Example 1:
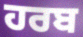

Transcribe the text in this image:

ਹਰਬ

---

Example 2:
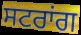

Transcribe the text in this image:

ਸਟਰਾਂਗ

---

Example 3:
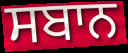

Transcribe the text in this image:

ਸਬਾਨ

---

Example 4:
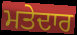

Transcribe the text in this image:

ਮਤੇਦਾਰ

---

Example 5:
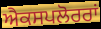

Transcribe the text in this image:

ਐਕਸਪਲੋਰਰਾਂ